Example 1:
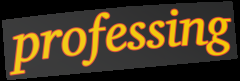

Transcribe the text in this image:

professing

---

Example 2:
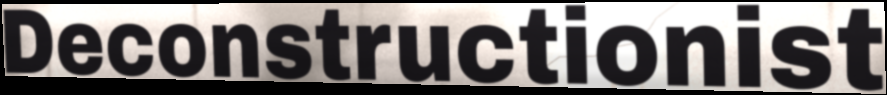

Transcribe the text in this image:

Deconstructionist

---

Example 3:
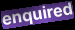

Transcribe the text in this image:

enquired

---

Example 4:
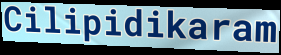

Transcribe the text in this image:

Cilipidikaram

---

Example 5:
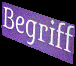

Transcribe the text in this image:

Begriff